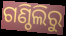
ଗଣ୍ଠିଲିରୁ